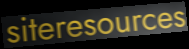
siteresources